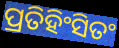
ପ୍ରତିହିଂସିତଂ